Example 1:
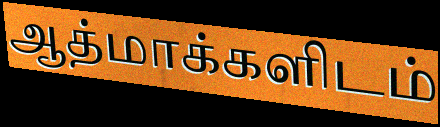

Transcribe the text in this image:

ஆத்மாக்களிடம்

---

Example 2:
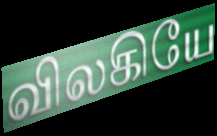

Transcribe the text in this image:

விலகியே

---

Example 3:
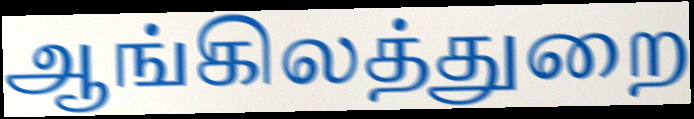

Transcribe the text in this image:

ஆங்கிலத்துறை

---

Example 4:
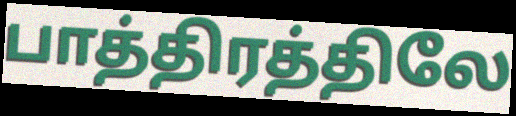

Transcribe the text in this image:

பாத்திரத்திலே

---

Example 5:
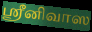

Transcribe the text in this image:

ஸ்ரீனிவாஸ